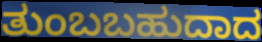
ತುಂಬಬಹುದಾದ